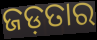
ଜଡ଼ତାର